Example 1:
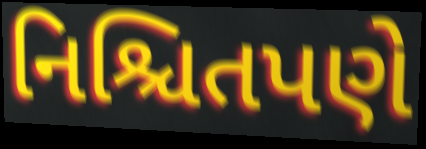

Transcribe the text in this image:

નિશ્ચિતપણે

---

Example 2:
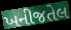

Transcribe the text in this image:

ખનીજતેલ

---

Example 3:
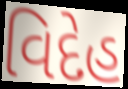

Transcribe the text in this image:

વિદેહ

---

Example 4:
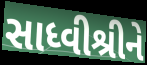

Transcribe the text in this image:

સાધ્વીશ્રીને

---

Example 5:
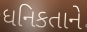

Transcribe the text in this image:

ધનિકતાને